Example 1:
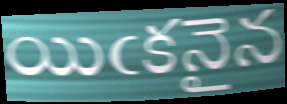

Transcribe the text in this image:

యిఁకనైన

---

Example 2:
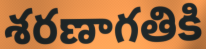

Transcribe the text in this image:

శరణాగతికి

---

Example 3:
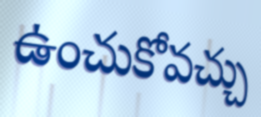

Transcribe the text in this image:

ఉంచుకోవచ్చు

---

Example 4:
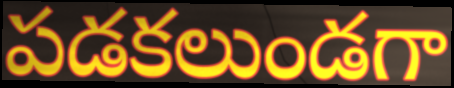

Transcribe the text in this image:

పడకలుండగా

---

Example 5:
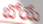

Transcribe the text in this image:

బోయే